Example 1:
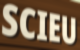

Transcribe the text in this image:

SCIEU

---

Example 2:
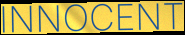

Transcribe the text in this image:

INNOCENT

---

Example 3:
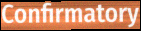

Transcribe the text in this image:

Confirmatory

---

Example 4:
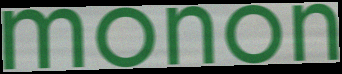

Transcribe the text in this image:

monon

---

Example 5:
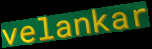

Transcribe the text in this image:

velankar